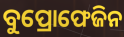
ବୁପ୍ରୋଫେଜିନ